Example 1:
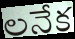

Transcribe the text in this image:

లనేక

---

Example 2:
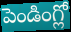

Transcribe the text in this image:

పెండింగ్లో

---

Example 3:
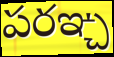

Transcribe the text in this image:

పరఞ్చ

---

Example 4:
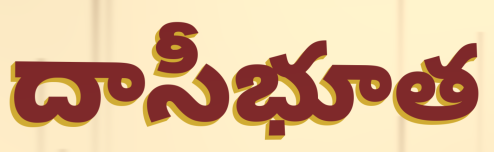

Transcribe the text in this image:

దాసీభూత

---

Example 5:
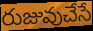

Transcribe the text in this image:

రుజువుచేసే